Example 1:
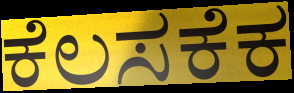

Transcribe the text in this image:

ಕೆಲಸಕೆಕ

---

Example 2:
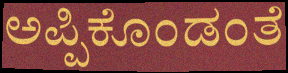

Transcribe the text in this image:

ಅಪ್ಪಿಕೊಂಡಂತೆ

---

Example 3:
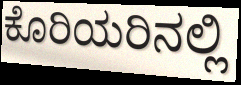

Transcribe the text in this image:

ಕೊರಿಯರಿನಲ್ಲಿ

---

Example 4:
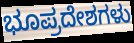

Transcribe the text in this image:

ಭೂಪ್ರದೇಶಗಳು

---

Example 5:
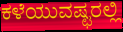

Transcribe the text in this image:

ಕಳೆಯುವಷ್ಟರಲ್ಲಿ